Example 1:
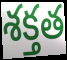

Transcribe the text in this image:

శక్తత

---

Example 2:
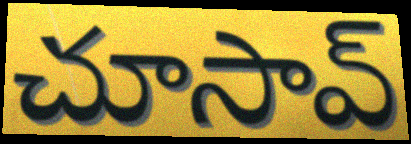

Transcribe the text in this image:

చూసావ్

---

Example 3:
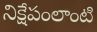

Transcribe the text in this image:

నిక్షేపంలాంటి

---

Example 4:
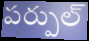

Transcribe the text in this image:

పర్పుల్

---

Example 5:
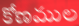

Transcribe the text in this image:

కోణముల